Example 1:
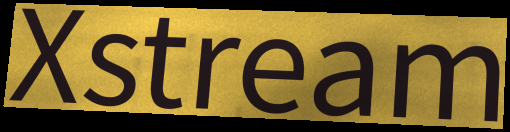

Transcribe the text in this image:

Xstream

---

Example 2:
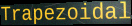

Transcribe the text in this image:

Trapezoidal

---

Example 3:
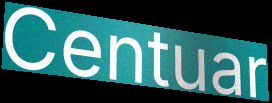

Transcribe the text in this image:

Centuar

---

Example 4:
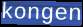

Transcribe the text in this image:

kongen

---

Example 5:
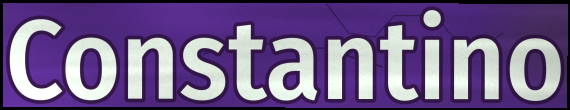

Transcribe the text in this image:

Constantino